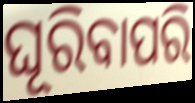
ଘୂରିବାପରି